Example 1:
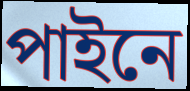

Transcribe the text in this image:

পাইনে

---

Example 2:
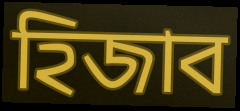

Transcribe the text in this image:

হিজাব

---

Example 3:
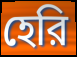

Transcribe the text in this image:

হেরি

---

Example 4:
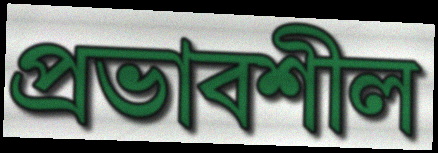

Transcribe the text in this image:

প্রভাবশীল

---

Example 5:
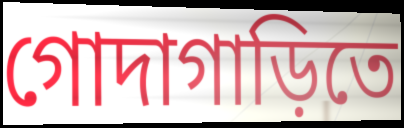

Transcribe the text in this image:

গোদাগাড়িতে